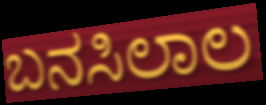
ಬನಸಿಲಾಲ